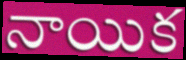
నాయిక